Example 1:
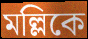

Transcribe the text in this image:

মল্লিকে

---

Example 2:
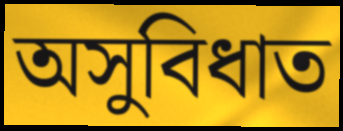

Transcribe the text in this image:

অসুবিধাত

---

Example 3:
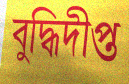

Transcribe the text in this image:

বুদ্ধিদীপ্ত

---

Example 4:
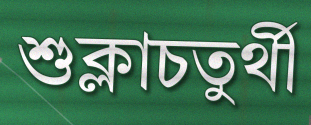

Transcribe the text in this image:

শুক্লাচতুৰ্থী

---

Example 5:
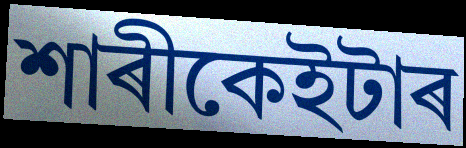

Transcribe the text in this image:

শাৰীকেইটাৰ